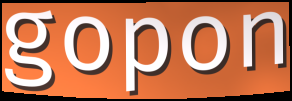
gopon